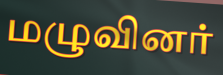
மழுவினர்